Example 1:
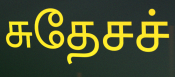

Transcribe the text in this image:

சுதேசச்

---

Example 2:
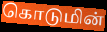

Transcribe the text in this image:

கொடுமின்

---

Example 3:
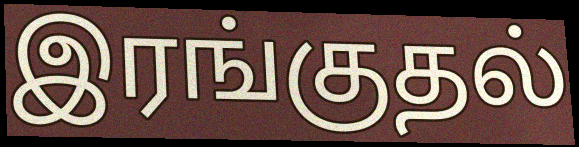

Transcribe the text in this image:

இரங்குதல்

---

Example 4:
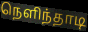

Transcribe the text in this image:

நெளிந்தாடி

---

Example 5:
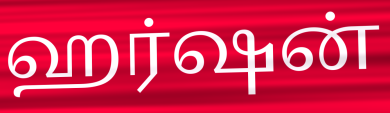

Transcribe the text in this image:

ஹர்ஷன்